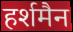
हर्शमैन